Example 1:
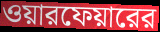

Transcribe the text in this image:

ওয়ারফেয়ারের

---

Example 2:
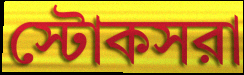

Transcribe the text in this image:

স্টোকসরা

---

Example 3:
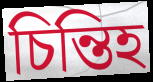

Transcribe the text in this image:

চিন্তিহ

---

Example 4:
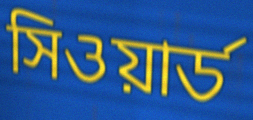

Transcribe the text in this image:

সিওয়ার্ড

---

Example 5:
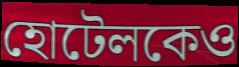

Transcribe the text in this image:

হোটেলকেও